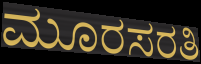
ಮೂರಸರತಿ